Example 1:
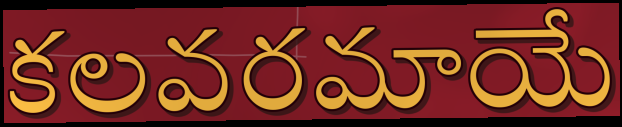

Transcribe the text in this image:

కలవరమాయే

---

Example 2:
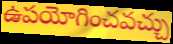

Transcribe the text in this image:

ఉపయోగించవచ్చు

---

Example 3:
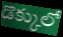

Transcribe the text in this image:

డొక్కులో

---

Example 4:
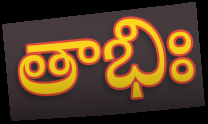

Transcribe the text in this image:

తాభిః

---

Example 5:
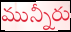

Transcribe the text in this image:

మున్నీరు